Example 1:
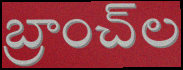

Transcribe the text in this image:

బ్రాంచ్‌ల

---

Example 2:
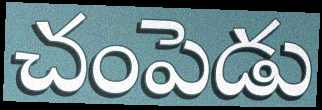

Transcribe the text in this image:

చంపెడు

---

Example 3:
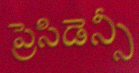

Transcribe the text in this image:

ప్రెసిడెన్సీ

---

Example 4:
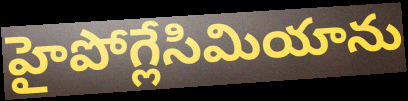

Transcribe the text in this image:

హైపోగ్లేసిమియాను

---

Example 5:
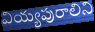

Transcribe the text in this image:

వియ్యపురాలిని